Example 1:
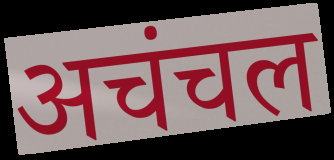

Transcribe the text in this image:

अचंचल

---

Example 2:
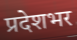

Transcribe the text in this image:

प्रदेशभर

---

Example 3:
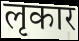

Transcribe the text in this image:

लृकार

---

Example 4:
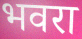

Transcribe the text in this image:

भवरा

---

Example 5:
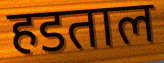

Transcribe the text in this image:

हडताल